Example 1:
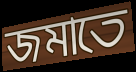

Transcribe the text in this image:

জমাতে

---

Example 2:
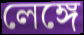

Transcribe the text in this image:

লেঙ্গে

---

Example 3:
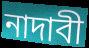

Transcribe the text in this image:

নাদাবী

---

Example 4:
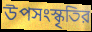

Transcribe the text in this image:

উপসংস্কৃতির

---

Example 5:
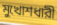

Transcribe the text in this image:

মুখোশধারী